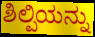
ಶಿಲ್ಪಿಯನ್ನು